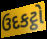
ઉદકટ્ઠો